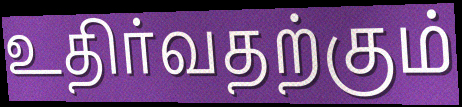
உதிர்வதற்கும்